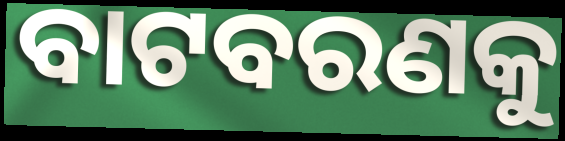
ବାଟବରଣକୁ